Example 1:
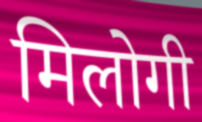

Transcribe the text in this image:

मिलोगी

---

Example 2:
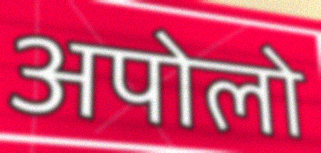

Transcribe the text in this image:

अपोलो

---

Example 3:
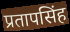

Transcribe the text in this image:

प्रतापसिंह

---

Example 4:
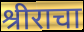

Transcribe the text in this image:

श्रीराचा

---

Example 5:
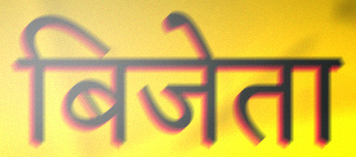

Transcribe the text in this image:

बिजेता